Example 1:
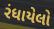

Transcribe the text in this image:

રંધાયેલો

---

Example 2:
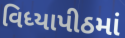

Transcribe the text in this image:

વિધ્યાપીઠમાં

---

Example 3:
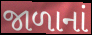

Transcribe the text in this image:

જાળાનાં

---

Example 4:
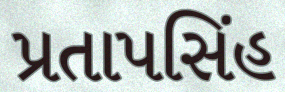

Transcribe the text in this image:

પ્રતાપસિંહ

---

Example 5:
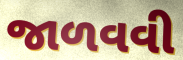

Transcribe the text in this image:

જાળવવી